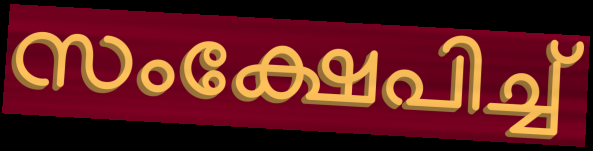
സംക്ഷേപിച്ച്